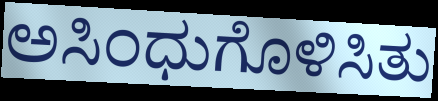
ಅಸಿಂಧುಗೊಳಿಸಿತು